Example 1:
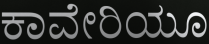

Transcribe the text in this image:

ಕಾವೇರಿಯೂ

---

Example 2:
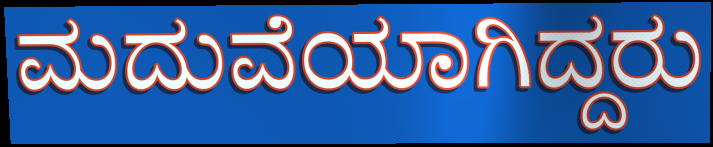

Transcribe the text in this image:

ಮದುವೆಯಾಗಿದ್ದರು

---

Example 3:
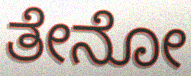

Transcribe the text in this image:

ತೇನೋ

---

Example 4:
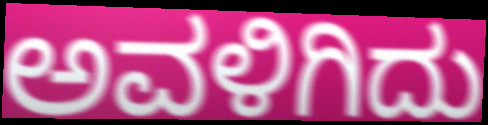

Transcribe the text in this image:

ಅವಳಿಗಿದು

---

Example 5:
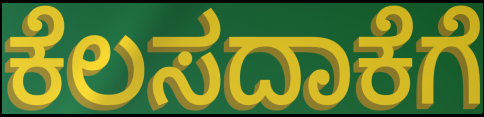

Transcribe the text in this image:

ಕೆಲಸದಾಕೆಗೆ